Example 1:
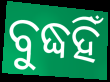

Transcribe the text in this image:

ବୁଦ୍ଧହିଁ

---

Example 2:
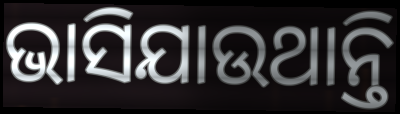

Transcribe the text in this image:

ଭାସିଯାଉଥାନ୍ତି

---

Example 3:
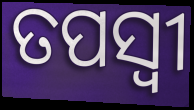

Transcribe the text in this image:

ତପସ୍ବୀ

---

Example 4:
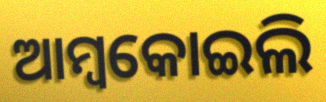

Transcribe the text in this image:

ଆମ୍ବକୋଇଲି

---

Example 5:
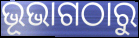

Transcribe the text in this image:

ଭୂଭାଗଠାରୁ